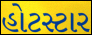
હોટસ્ટાર